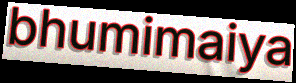
bhumimaiya